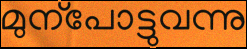
മുന്പോട്ടുവന്നു